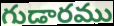
గుడారము